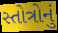
સ્તોત્રોનું